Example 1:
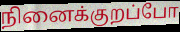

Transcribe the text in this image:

நினைக்குறப்போ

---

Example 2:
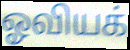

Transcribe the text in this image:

ஓவியக்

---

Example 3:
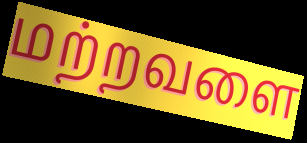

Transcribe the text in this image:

மற்றவளை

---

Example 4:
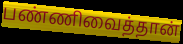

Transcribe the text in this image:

பண்ணிவைத்தான்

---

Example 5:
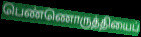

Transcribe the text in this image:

பெண்ணொருத்தியைப்